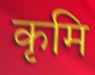
कृमि